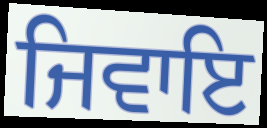
ਜਿਵਾਇ